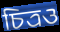
চিত্রও